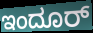
ಇಂದೂರ್